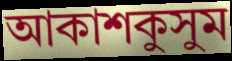
আকাশকুসুম